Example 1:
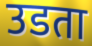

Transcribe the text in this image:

उडता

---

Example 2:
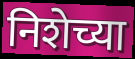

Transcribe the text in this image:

निशेच्या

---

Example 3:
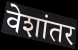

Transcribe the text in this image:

वेशांतर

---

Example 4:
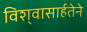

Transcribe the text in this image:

विश्वासार्हतेने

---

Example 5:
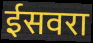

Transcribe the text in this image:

ईसवरा